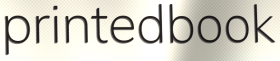
printedbook